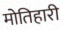
मोतिहारी